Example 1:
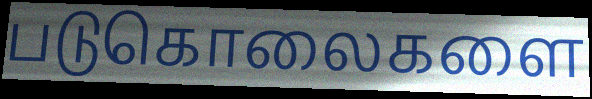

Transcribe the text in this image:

படுகொலைகளை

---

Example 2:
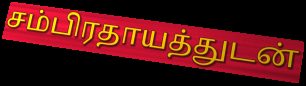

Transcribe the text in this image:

சம்பிரதாயத்துடன்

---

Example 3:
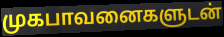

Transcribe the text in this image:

முகபாவனைகளுடன்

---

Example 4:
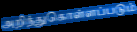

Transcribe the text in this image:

அறிந்துகொள்ளப்படும்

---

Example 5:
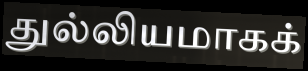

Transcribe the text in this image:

துல்லியமாகக்